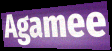
Agamee